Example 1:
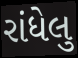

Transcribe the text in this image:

રાંધેલુ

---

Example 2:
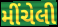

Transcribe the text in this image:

મીંચેલી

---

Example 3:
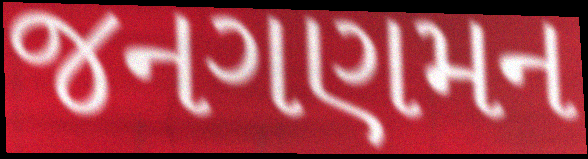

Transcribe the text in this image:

જનગણમન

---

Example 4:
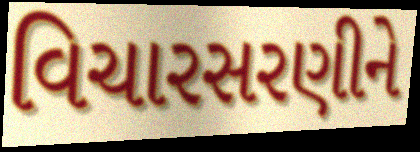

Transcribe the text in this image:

વિચારસરણીને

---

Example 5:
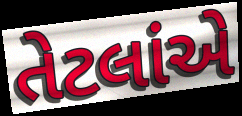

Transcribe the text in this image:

તેટલાંએ